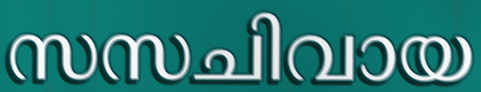
സസചിവായ